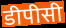
डीपीसी